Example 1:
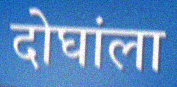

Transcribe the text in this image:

दोघांला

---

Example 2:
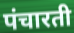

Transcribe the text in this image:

पंचारती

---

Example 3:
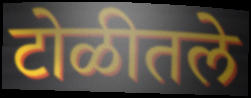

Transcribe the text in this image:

टोळीतले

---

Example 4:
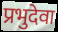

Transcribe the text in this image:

प्रभुदेवा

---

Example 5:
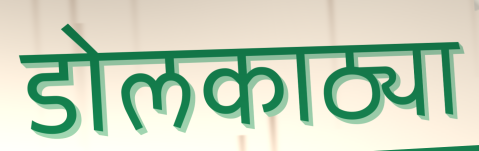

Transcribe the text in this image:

डोलकाठ्या